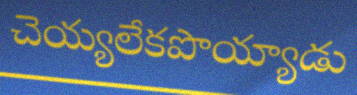
చెయ్యలేకపొయ్యాడు